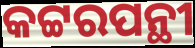
କଟ୍ଟରପନ୍ଥୀ